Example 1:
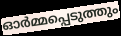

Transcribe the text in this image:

ഓർമ്മപ്പെടുത്തും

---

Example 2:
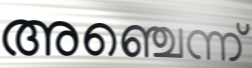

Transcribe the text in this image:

അഞ്ചെന്ന്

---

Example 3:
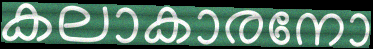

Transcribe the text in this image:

കലാകാരനോ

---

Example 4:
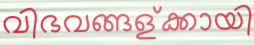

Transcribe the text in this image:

വിഭവങ്ങള്ക്കായി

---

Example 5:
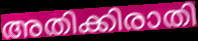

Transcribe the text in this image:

അതിക്കിരാതി